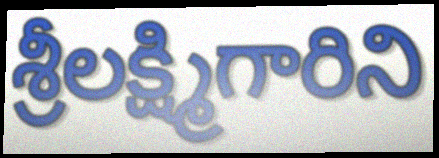
శ్రీలక్ష్మిగారిని